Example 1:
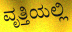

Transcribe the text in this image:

ವೃತ್ತಿಯಲ್ಲಿ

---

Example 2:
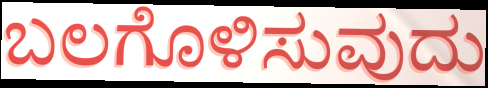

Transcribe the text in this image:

ಬಲಗೊಳಿಸುವುದು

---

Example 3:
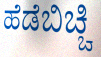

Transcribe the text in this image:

ಹೆಡೆಬಿಚ್ಚಿ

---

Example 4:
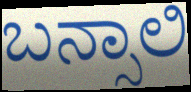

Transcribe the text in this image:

ಬನ್ಸಾಲಿ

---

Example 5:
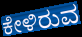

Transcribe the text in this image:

ಕೇಳಿರುವ